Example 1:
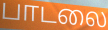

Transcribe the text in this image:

பாடலை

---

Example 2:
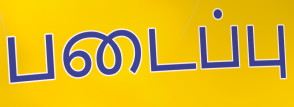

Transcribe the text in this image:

படைப்பு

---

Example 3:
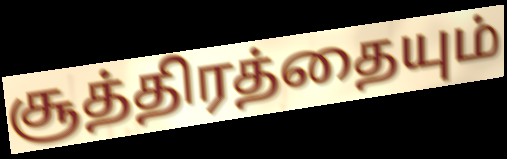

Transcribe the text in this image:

சூத்திரத்தையும்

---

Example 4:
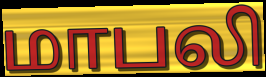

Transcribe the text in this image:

மாபலி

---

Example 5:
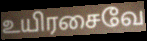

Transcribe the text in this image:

உயிரசைவே